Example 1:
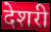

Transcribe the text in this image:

देशरी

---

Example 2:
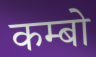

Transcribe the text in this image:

कम्बो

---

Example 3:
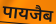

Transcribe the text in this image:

पायजैब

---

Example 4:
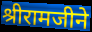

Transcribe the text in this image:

श्रीरामजीने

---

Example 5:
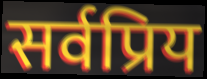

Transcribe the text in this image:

सर्वप्रिय